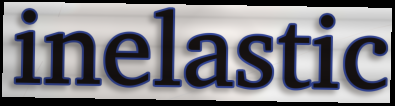
inelastic